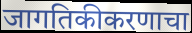
जागतिकीकरणाचा